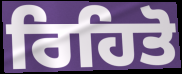
ਰਿਹਿਤੋ